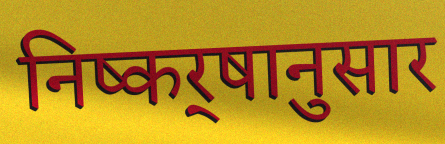
निष्कर्षानुसार